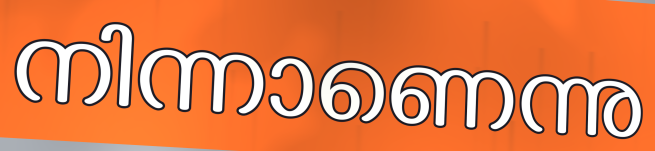
നിന്നാണെന്നു